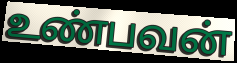
உண்பவன்